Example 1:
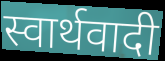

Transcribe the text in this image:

स्वार्थवादी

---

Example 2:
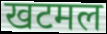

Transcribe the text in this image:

खटमल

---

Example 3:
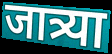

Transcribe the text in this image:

जात्र्या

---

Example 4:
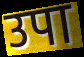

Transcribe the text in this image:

उपा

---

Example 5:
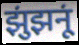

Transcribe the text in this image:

झुंझनूं